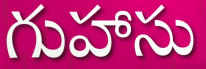
గుహాసు